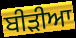
ਬੀੜੀਆ